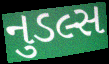
નુડલ્સ